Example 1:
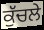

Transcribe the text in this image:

ਕੁੱਚਲੇ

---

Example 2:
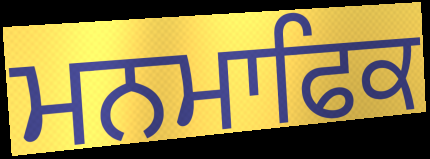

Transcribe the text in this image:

ਮਨਮਾਫਿਕ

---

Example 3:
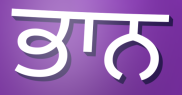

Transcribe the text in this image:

ਭਾਨ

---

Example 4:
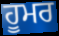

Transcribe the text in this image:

ਹੂਮਰ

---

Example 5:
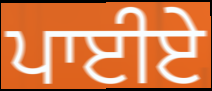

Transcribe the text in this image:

ਪਾਈਏ